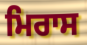
ਮਿਰਾਸ